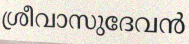
ശ്രീവാസുദേവൻ